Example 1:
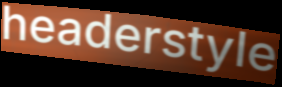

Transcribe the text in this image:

headerstyle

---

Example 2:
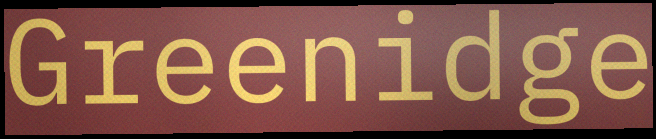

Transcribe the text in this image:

Greenidge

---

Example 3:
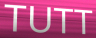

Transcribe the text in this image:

TUTT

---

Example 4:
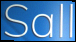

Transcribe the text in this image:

Sall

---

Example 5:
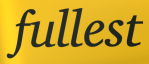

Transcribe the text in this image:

fullest